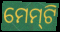
ମେମ୍‍ଟି